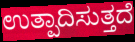
ಉತ್ಪಾದಿಸುತ್ತದೆ